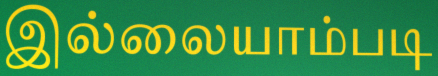
இல்லையாம்படி